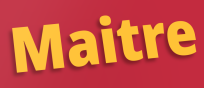
Maitre